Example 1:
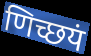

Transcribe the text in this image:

णिच्छयं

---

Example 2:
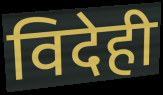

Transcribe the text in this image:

विदेही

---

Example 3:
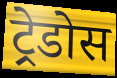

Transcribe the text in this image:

ट्रेडोस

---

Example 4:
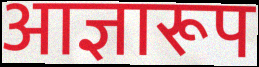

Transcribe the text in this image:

आज्ञारूप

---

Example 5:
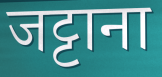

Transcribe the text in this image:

जट्टाना